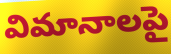
విమానాలపై